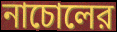
নাচোলের